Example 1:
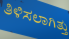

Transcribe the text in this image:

ತಿಳಿಸಲಾಗಿತ್ತು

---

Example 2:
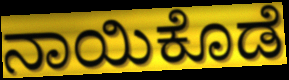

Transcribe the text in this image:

ನಾಯಿಕೊಡೆ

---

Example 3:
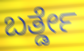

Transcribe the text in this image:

ಬರ್ತ್ಡೇ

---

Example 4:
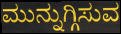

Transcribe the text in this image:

ಮುನ್ನುಗ್ಗಿಸುವ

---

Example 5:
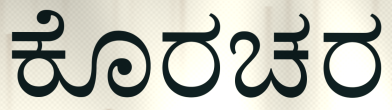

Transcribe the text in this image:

ಕೊರಚರ